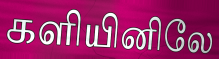
களியினிலே